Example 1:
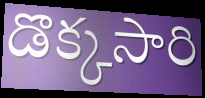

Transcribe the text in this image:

డొక్కసారి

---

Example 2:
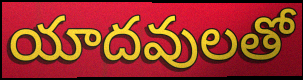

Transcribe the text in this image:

యాదవులతో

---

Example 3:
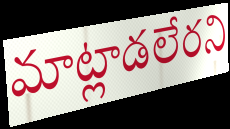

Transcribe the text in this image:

మాట్లాడలేరని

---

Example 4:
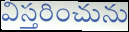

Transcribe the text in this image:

విస్తరించును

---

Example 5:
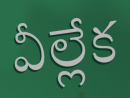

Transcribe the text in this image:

వీల్లేక